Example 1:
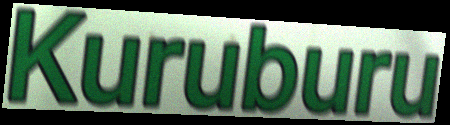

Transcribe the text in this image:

Kuruburu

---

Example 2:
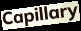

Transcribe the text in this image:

Capillary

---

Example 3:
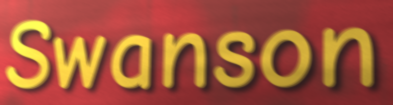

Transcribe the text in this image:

Swanson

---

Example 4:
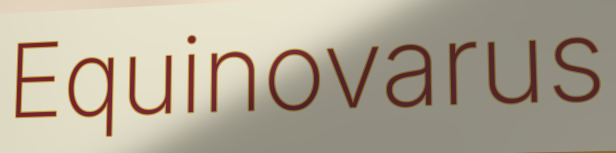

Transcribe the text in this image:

Equinovarus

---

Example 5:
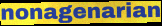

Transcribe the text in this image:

nonagenarian